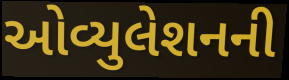
ઓવ્યુલેશનની